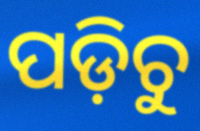
ପଡ଼ିଚୁ